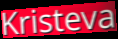
Kristeva